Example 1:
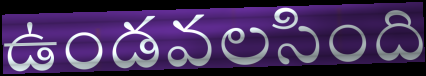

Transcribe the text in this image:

ఉండవలసింది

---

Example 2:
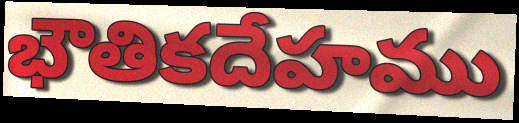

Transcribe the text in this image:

భౌతికదేహము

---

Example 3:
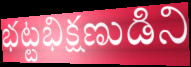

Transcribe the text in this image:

భట్టభిక్షణుడిని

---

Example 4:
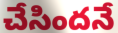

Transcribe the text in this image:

చేసిందనే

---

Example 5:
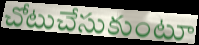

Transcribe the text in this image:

చోటుచేసుకుంటూ